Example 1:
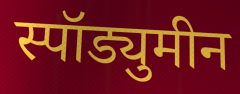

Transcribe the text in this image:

स्पॉड्युमीन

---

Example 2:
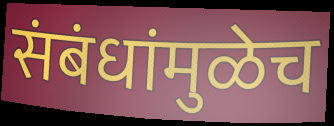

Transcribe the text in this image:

संबंधांमुळेच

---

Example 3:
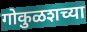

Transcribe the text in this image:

गोकुळशच्या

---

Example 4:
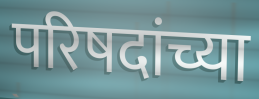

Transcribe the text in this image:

परिषदांच्या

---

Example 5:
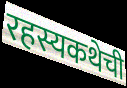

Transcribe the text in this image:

रहस्यकथेची